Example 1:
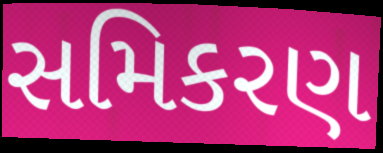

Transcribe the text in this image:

સમિકરણ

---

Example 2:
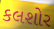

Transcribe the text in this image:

કલશોર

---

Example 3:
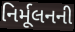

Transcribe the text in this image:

નિર્મૂલનની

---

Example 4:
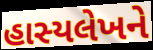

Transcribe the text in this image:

હાસ્યલેખને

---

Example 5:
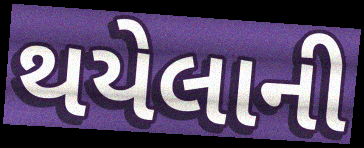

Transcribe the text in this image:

થયેલાની